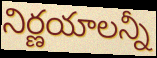
నిర్ణయాలన్నీ